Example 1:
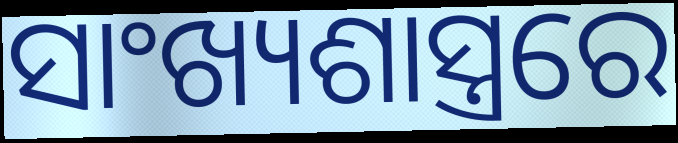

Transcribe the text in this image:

ସାଂଖ୍ୟଶାସ୍ତ୍ରରେ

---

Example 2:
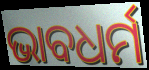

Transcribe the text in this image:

ଭାବଧର୍ମ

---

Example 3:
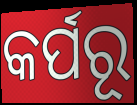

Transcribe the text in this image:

କର୍ପରୂ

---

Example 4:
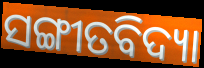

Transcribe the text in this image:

ସଙ୍ଗୀତବିଦ୍ୟା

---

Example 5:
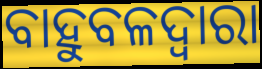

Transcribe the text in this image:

ବାହୁବଳଦ୍ୱାରା